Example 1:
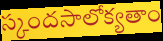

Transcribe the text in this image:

స్కందసాలోక్యతాం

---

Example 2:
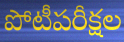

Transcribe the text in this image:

పోటీపరీక్షల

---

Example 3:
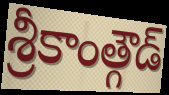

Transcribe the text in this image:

శ్రీకాంత్గౌడ్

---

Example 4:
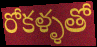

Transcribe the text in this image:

రోకళ్ళతో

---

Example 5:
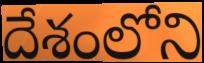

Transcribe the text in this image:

దేశంలోని